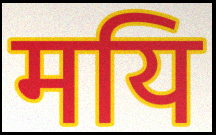
मयि